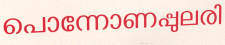
പൊന്നോണപ്പുലരി